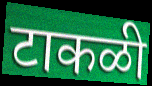
टाकळी